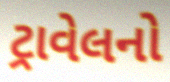
ટ્રાવેલનો